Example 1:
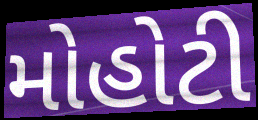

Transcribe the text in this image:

મોહોટી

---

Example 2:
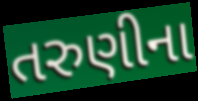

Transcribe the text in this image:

તરુણીના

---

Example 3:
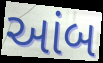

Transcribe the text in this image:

આંબ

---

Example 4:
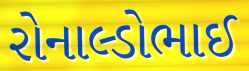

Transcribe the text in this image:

રોનાલ્ડોભાઈ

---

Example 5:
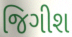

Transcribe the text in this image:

જિગીશ